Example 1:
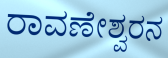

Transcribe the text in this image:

ರಾವಣೇಶ್ವರನ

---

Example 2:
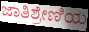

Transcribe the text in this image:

ಜಾತಿಶ್ರೇಣಿಯ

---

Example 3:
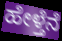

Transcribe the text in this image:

ಹೇಳ್ತೆನೆ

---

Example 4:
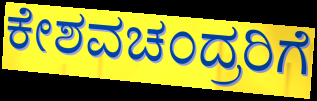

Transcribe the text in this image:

ಕೇಶವಚಂದ್ರರಿಗೆ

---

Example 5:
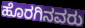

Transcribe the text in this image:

ಹೊರಗಿನವರು